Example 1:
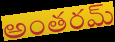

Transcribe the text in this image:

అంతరమ్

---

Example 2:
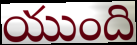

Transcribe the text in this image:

యుంది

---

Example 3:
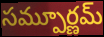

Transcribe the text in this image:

సమ్పూర్ణమ్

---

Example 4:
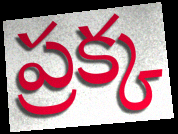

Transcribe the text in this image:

ప్రక్క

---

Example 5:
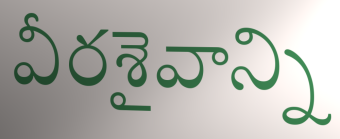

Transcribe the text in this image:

వీరశైవాన్ని